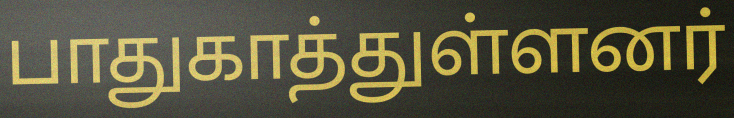
பாதுகாத்துள்ளனர்